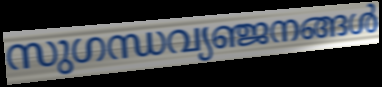
സുഗന്ധവ്യഞ്ജനങ്ങൾ